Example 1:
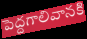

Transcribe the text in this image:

పెద్దగాలివానకి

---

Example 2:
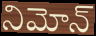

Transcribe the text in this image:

నిమోన్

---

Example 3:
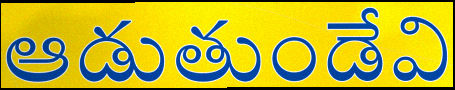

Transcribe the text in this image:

ఆడుతుండేవి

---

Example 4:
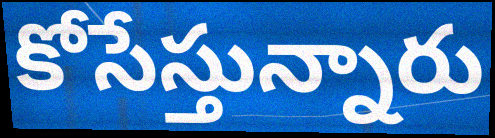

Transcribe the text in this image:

కోసేస్తున్నారు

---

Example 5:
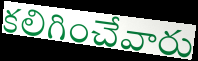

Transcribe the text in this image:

కలిగించేవారు